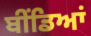
ਬੀਂਡਿਆਂ